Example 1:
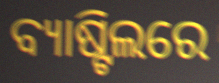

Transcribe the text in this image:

ବ୍ୟାଷ୍ଟିଲରେ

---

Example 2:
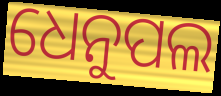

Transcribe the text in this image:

ଧେନୁପଲ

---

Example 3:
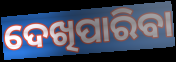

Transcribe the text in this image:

ଦେଖିପାରିବା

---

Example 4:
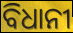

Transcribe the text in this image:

ବିଧାନୀ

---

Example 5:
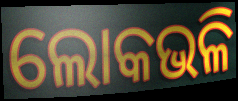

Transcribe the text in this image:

ଲୋକଭଳି